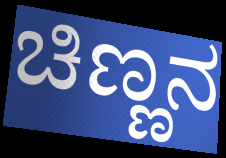
ಚಿಣ್ಣನ